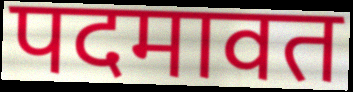
पदमावत